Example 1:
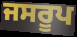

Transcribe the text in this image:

ਜਸਰੂਪ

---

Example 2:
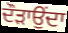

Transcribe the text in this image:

ਦੌੜਾਉਂਦਾ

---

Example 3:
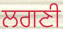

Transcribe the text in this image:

ਲਗਣੀ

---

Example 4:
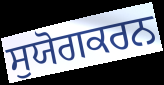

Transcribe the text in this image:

ਸੁਯੋਗਕਰਨ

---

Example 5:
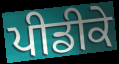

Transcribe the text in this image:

ਪੀਡੀਕੇ